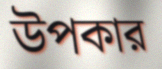
উপকার